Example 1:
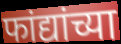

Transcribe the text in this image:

फांद्यांच्या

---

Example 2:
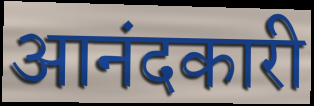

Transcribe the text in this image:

आनंदकारी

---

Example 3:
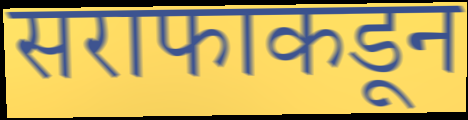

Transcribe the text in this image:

सराफाकडून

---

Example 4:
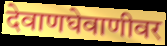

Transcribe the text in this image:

देवाणघेवाणीवर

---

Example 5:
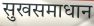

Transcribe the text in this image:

सुखसमाधान